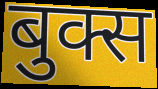
बुक्स